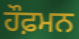
ਹੌਫ਼ਮਨ